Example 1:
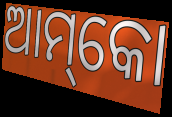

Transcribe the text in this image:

ଆମ୍‌କୋ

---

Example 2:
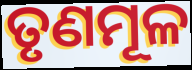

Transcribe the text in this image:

ତୃଣମୂଳ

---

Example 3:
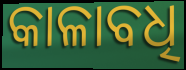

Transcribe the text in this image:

କାଳାବଧି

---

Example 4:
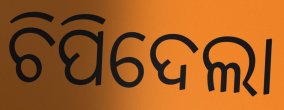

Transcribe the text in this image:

ଚିପିଦେଲା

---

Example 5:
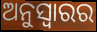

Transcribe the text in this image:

ଅନୁସ୍ଵାରର